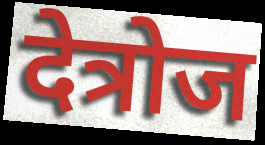
देत्रोज